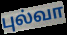
புல்வா